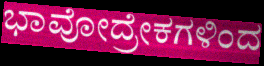
ಭಾವೋದ್ರೇಕಗಳಿಂದ